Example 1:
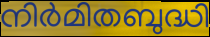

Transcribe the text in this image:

നിർമിതബുദ്ധി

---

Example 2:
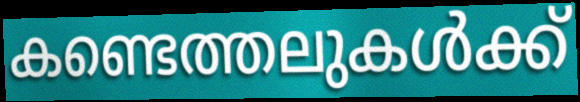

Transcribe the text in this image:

കണ്ടെത്തലുകൾക്ക്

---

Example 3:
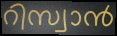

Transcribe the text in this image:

റിസ്വാൻ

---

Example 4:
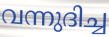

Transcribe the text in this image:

വന്നുദിച്ച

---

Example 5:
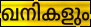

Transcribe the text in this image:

ഖനികളും